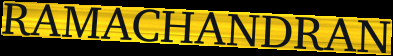
RAMACHANDRAN